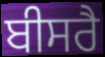
ਬੀਸਰੈ